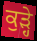
ਕੁੜ੍ਹੇ